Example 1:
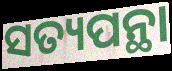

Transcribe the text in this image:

ସତ୍ୟପନ୍ଥା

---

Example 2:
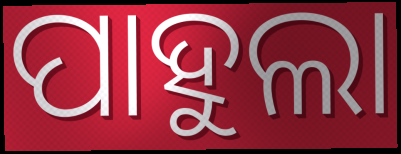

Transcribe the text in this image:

ପାହୁଲା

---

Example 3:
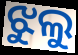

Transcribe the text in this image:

ଝୁଲୁ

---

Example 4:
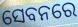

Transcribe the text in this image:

ସେବନରେ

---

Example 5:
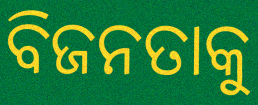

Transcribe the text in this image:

ବିଜନତାକୁ